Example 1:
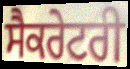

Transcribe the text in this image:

ਸੈਕਰੇਟਰੀ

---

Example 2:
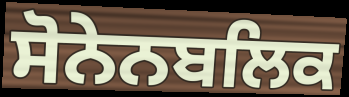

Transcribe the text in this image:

ਸੋਨੇਨਬਲਿਕ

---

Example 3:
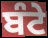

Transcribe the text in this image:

ਬੰਟੇ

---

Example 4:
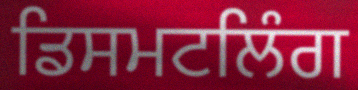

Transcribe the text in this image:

ਡਿਸਮਟਲਿੰਗ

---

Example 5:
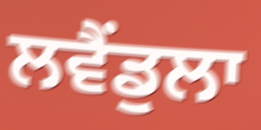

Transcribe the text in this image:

ਲਵੈਂਡੁਲਾ